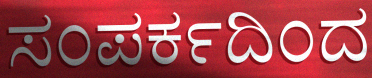
ಸಂಪರ್ಕದಿಂದ